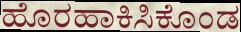
ಹೊರಹಾಕಿಸಿಕೊಂಡ